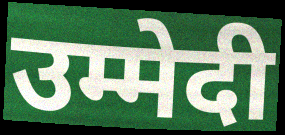
उम्मेदी